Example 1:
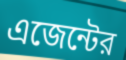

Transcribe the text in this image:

এজেন্টের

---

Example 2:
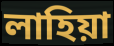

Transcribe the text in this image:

লাহিয়া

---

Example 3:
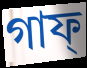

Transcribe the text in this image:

গাফ্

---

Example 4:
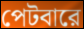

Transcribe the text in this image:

পেটবারে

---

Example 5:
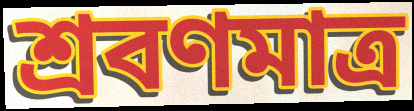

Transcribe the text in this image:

শ্রবণমাত্র